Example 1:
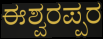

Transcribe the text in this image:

ಈಶ್ವರಪ್ಪರ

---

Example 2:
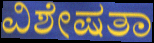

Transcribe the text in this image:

ವಿಶೇಷತಾ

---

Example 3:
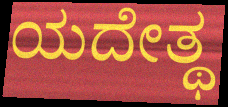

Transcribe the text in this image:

ಯದೇತ್ಥ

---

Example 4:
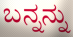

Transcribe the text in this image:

ಬನ್ನನ್ನು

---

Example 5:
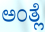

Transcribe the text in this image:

ಅಂತ್ಲೆ